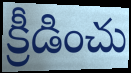
క్రీడించు